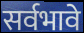
सर्वभावे